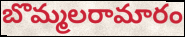
బొమ్మలరామారం